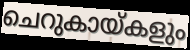
ചെറുകായ്കളും